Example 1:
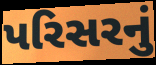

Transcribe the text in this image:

પરિસરનું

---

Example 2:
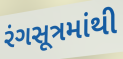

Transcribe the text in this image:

રંગસૂત્રમાંથી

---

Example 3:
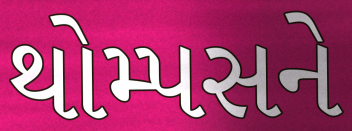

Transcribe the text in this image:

થોમ્પસને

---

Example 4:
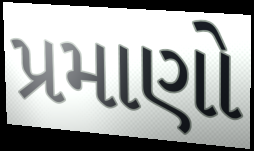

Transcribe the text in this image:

પ્રમાણો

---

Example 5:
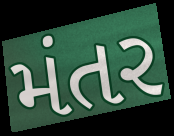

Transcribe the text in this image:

મંતર